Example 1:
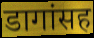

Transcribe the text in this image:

डागांसह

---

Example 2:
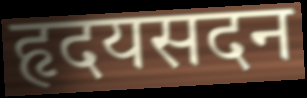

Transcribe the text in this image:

हृदयसदन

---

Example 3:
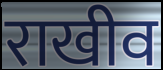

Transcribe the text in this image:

राखीव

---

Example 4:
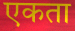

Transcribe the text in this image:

एकता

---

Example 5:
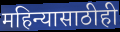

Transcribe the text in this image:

महिन्यासाठीही